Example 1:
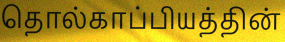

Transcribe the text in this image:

தொல்காப்பியத்தின்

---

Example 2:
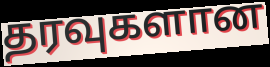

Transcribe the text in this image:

தரவுகளான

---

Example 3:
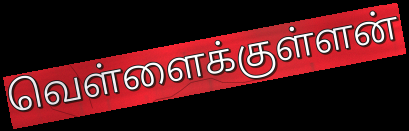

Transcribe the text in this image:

வெள்ளைக்குள்ளன்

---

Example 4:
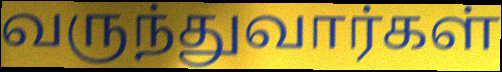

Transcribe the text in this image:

வருந்துவார்கள்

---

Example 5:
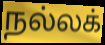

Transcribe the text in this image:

நல்லக்